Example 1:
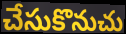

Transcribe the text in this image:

చేసుకొనుచు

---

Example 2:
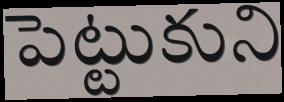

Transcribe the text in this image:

పెట్టుకుని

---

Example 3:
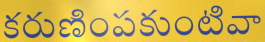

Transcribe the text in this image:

కరుణింపకుంటివా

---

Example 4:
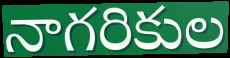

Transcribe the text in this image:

నాగరికుల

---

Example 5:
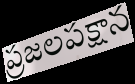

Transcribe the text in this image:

ప్రజలపక్షాన